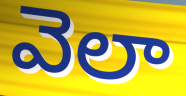
వెలా